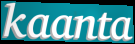
kaanta